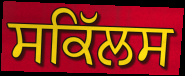
ਸਕਿੱਲਸ